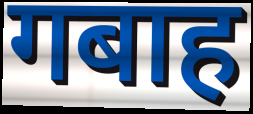
गबाह